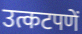
उत्कटपणें